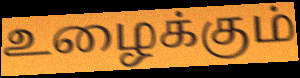
உழைக்கும்